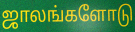
ஜாலங்களோடு